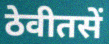
ठेवीतसें